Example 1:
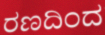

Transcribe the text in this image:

ರಣದಿಂದ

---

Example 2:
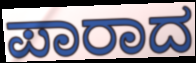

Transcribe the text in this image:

ಪಾರಾದ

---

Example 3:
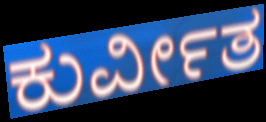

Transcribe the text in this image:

ಕುರ್ವೀತ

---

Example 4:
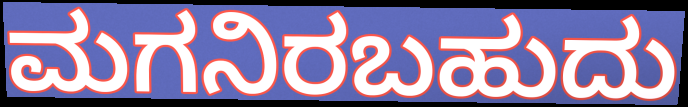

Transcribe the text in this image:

ಮಗನಿರಬಹುದು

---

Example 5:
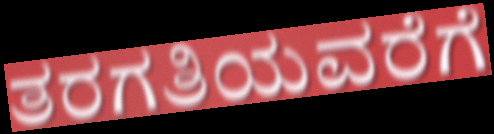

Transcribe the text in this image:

ತರಗತಿಯವರೆಗೆ